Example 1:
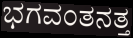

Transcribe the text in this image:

ಭಗವಂತನತ್ತ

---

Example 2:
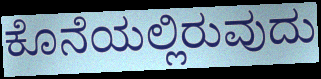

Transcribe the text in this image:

ಕೊನೆಯಲ್ಲಿರುವುದು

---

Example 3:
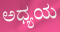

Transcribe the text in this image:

ಅಧ್ಯಯ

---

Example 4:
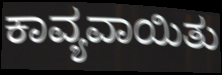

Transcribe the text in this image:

ಕಾವ್ಯವಾಯಿತು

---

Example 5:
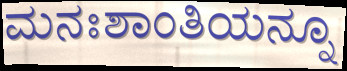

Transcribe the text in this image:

ಮನಃಶಾಂತಿಯನ್ನೂ